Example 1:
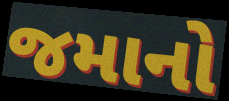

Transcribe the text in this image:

જમાનો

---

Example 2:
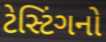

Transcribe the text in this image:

ટેસ્ટિંગનો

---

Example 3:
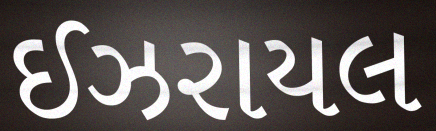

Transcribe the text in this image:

ઈઝરાયલ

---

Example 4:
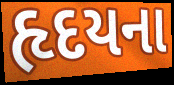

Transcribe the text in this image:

હૃદયના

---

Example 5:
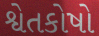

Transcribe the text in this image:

શ્વેતકોષો